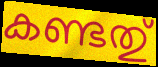
കണ്ടതു്